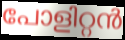
പോളിറ്റൻ